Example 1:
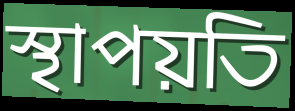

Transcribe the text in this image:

স্থাপয়তি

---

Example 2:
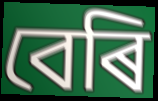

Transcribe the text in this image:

বেৰি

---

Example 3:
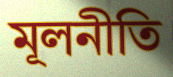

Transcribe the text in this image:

মূলনীতি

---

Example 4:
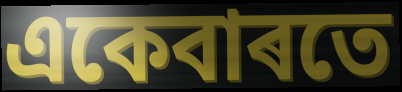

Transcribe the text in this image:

একেবাৰতে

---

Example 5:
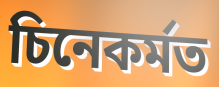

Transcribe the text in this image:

চিনেকৰ্মত